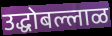
उद्धोबल्लाळ